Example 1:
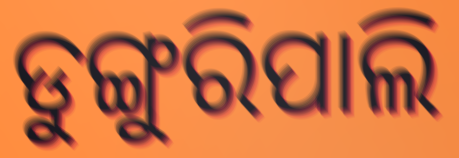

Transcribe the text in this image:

ଡୁଙ୍ଗୁରିପାଲି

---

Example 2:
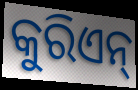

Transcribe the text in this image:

କୁରିଏନ୍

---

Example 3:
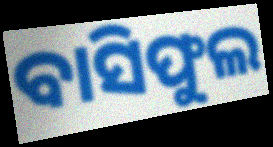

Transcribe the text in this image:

ବାସିଫୁଲ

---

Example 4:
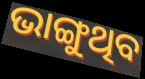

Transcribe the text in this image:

ଭାଙ୍ଗୁଥିବ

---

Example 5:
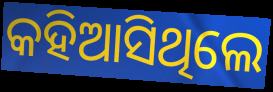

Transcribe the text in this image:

କହିଆସିଥିଲେ